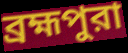
ব্রহ্মপুরা